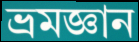
ভ্রমজ্ঞান